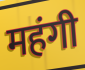
महंगी